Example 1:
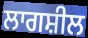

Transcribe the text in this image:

ਲਾਗਸ਼ੀਲ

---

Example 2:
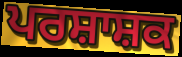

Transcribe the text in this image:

ਪਰਸ਼ਾਸ਼ਕ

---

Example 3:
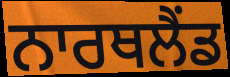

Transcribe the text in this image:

ਨਾਰਥਲੈਂਡ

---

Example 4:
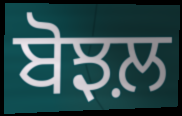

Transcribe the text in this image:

ਬੋਝਲ਼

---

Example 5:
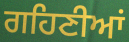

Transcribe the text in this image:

ਗਹਿਣੀਆਂ